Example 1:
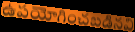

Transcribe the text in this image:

ఉపయోగించబడినవి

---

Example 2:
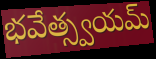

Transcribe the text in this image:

భవేత్స్వయమ్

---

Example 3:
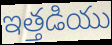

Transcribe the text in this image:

ఇత్తడియు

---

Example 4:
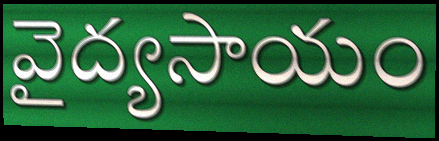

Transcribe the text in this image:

వైద్యసాయం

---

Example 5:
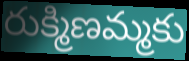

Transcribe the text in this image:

రుక్మిణమ్మకు